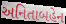
અનિતાબહેન